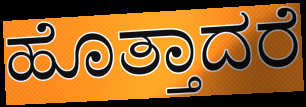
ಹೊತ್ತಾದರೆ